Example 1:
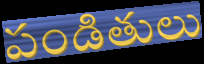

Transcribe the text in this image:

పండితులు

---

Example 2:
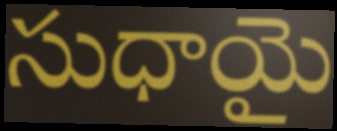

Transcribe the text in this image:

సుధాయై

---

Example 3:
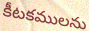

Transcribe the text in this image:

కీటకములను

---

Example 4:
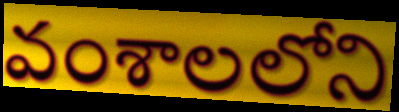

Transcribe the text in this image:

వంశాలలోని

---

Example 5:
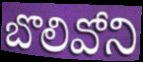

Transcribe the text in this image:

బొలివోని